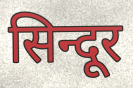
सिन्दूर